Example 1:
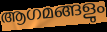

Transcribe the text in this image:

ആഗമങ്ങളും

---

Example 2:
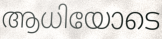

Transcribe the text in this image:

ആധിയോടെ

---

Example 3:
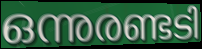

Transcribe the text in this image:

ഒന്നുരണ്ടടി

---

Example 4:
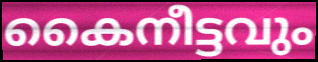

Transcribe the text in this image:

കൈനീട്ടവും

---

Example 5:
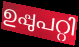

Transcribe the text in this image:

ഉപ്പുപറ്റി